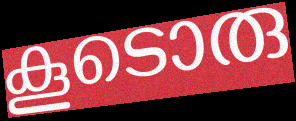
കൂടൊരു